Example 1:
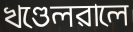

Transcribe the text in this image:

খণ্ডেলৱালে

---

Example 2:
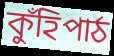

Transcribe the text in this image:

কুঁহিপাঠ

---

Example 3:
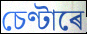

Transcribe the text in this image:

চেণ্টাৰে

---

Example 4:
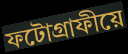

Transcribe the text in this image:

ফটোগ্ৰাফীয়ে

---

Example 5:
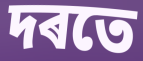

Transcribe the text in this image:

দৰতে